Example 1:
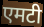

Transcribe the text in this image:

एमटी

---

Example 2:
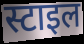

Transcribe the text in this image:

स्टाइल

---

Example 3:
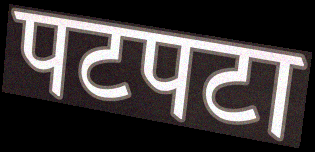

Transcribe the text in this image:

पटपटा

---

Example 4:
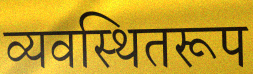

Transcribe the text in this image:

व्यवस्थितरूप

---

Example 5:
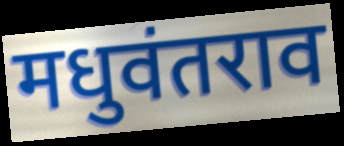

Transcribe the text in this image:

मधुवंतराव